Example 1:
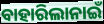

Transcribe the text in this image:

ବାହାରିଲାନାଇଁ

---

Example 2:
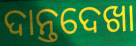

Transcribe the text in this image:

ଦାନ୍ତଦେଖା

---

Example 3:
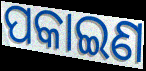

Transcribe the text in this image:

ପକାଇଣ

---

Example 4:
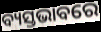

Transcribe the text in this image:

ବ୍ୟସ୍ତଭାବରେ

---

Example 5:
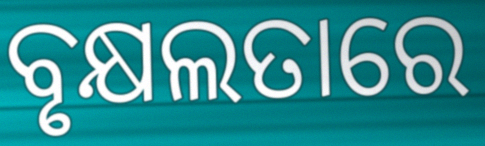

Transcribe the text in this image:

ବୃକ୍ଷଲତାରେ